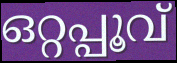
ഒറ്റപ്പൂവ്